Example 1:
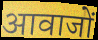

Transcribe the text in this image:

आवाजों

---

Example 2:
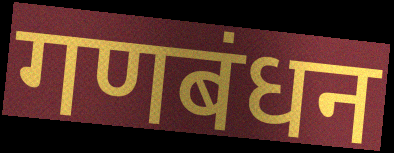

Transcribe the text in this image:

गणबंधन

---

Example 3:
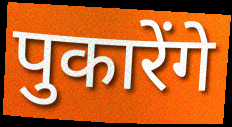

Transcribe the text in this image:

पुकारेंगे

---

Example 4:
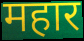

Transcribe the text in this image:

महार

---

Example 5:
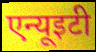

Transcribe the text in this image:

एन्यूइटी